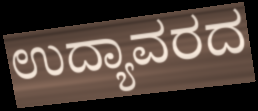
ಉದ್ಯಾವರದ